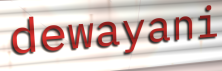
dewayani